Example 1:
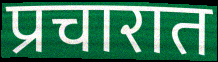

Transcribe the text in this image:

प्रचारात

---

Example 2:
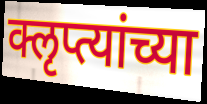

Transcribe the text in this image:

क्लृप्त्यांच्या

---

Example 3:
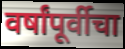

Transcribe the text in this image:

वर्षांपूर्वीचा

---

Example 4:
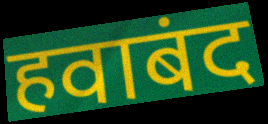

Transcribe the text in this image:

हवाबंद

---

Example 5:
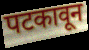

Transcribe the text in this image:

पटकावून